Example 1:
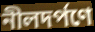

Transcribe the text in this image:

নীলদর্পণে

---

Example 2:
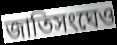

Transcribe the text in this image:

জাতিসংঘেও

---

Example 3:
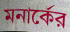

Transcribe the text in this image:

মনার্কের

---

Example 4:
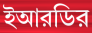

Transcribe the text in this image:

ইআরডির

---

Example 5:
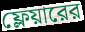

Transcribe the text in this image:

ফ্লেয়ারের